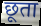
छूता